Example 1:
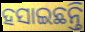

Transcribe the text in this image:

ହସାଇଛନ୍ତି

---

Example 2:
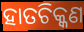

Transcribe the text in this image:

ହାତଚିକ୍କଣ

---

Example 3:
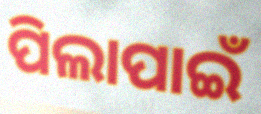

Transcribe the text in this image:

ପିଲାପାଇଁ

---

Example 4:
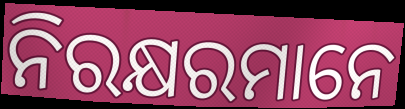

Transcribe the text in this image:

ନିରକ୍ଷରମାନେ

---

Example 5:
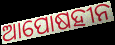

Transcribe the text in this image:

ଆପୋଷହୀନ